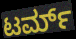
ಟರ್ಮ್